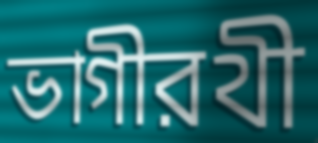
ভাগীরথী